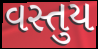
વસ્તુય